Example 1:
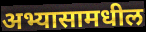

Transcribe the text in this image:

अभ्यासामधील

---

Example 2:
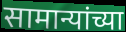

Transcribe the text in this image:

सामान्यांच्या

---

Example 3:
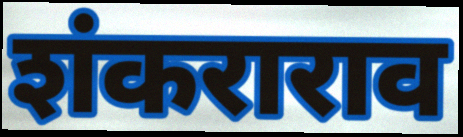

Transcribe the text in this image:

शंकराराव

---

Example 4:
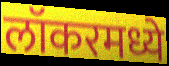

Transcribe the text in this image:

लॉकरमध्ये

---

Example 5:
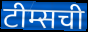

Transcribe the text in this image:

टीम्सची